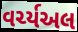
વર્ચ્યઅલ